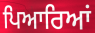
ਪਿਆਰਿਆਂ